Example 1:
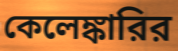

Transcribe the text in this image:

কেলেঙ্কারির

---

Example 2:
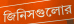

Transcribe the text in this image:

জিনিসগুলোর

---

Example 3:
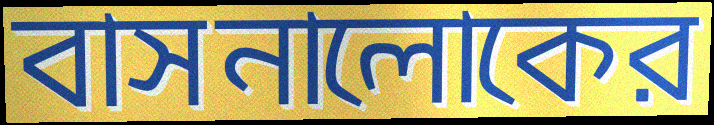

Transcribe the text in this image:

বাসনালোকের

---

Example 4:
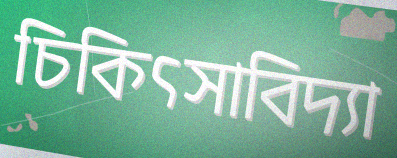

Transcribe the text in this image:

চিকিৎসাবিদ্যা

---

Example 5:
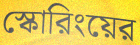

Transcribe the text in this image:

স্কোরিংয়ের